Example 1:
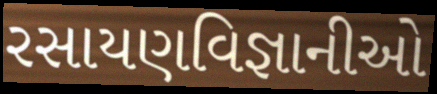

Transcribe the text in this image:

રસાયણવિજ્ઞાનીઓ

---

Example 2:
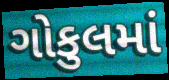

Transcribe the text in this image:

ગોકુલમાં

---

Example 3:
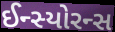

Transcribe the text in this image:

ઈન્સ્યોરન્સ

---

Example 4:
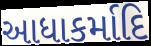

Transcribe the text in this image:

આધાકર્માદિ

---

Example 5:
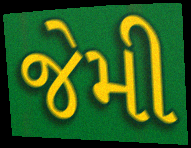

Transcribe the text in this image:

જેમી